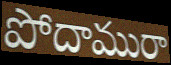
పోదామురా